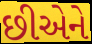
છીએને